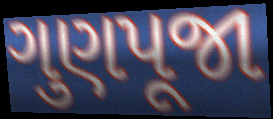
ગુણપૂજા